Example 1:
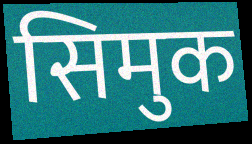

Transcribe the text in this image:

सिमुक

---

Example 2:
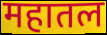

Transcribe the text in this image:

महातल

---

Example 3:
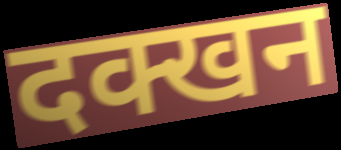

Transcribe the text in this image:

दक्खन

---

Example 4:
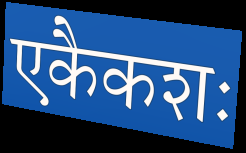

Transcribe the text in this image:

एकैकशः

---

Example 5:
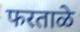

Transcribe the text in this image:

फरताळे